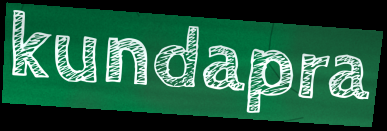
kundapra